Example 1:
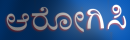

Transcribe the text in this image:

ಆರೋಗಿಸಿ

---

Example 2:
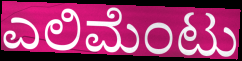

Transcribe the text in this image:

ಎಲಿಮೆಂಟು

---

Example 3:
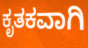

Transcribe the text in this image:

ಕೃತಕವಾಗಿ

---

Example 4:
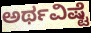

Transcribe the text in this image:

ಅರ್ಥವಿಷ್ಟೆ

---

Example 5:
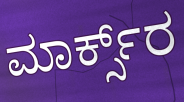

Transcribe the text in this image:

ಮಾರ್ಕ್ಸ್‌ರ